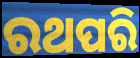
ରଥପରି